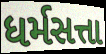
ધર્મસત્તા